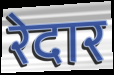
रेदार